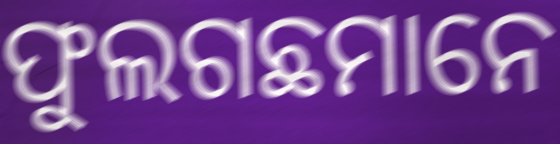
ଫୁଲଗଛମାନେ